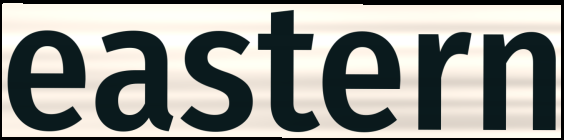
eastern